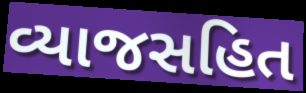
વ્યાજસહિત